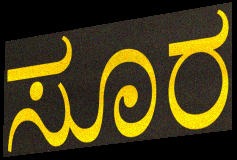
ಸೂರ